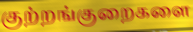
குற்றங்குறைகளை